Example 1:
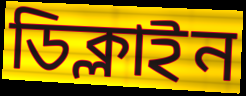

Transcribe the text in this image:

ডিক্লাইন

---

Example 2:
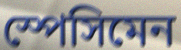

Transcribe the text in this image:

স্পেসিমেন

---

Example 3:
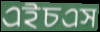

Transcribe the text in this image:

এইচএস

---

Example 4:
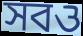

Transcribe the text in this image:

সবও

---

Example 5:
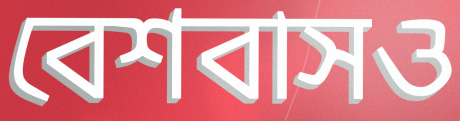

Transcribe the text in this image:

বেশবাসও